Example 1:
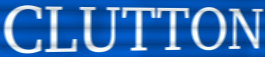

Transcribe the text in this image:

CLUTTON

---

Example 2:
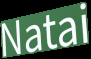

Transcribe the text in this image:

Natai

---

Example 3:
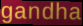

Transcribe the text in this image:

gandha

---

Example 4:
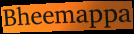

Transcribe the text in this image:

Bheemappa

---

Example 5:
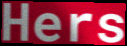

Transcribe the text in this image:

Hers